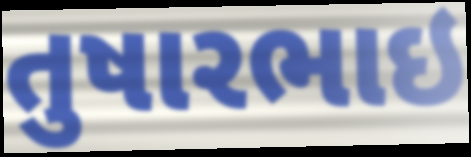
તુષારભાઇ